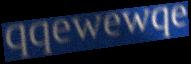
qqewewqe